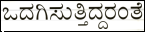
ಒದಗಿಸುತ್ತಿದ್ದರಂತೆ